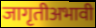
जागृतीअभावी